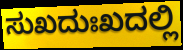
ಸುಖದುಃಖದಲ್ಲಿ